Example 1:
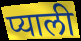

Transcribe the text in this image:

प्याली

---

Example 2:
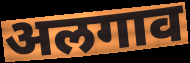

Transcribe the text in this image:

अलगाव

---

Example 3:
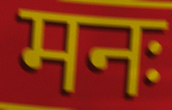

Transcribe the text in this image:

मनः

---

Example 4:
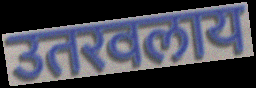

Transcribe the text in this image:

उतरवलाय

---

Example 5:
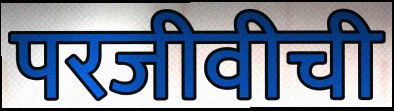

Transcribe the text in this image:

परजीवीची